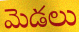
మెడలు